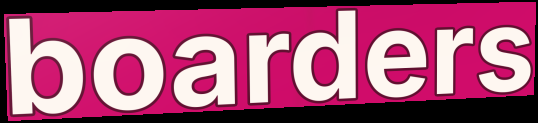
boarders